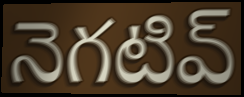
నెగటివ్